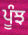
ਪੂੰਝ